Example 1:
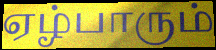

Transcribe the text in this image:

ஏழ்பாரும்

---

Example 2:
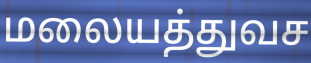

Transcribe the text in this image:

மலையத்துவச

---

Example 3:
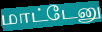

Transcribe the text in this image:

மாட்டேனு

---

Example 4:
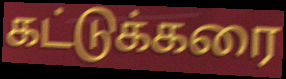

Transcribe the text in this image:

கட்டுக்கரை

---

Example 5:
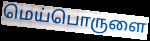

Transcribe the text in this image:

மெய்பொருளை